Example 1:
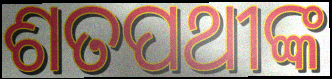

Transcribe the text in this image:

ଶତପଥୀଙ୍କ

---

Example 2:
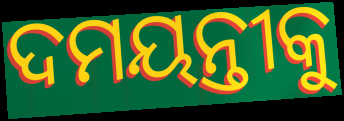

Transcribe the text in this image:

ଦମୟନ୍ତୀକୁ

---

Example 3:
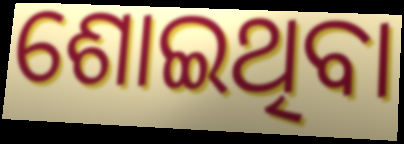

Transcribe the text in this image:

ଶୋଇଥିବା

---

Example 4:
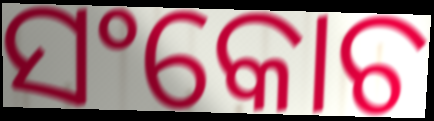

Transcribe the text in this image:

ସଂକୋଚ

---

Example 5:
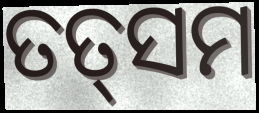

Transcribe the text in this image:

ତତ୍‌ସମ